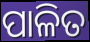
ପାଳିତ